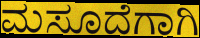
ಮಸೂದೆಗಾಗಿ